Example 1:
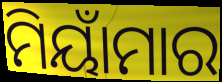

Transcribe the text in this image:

ମିୟାଁମାର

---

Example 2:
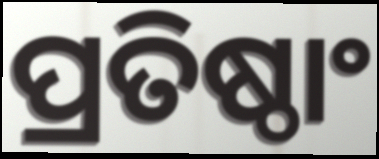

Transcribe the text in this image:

ପ୍ରତିଷ୍ଠାଂ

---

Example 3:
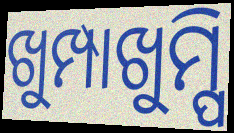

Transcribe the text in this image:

ଖୁମ୍ପାଖୁମ୍ପି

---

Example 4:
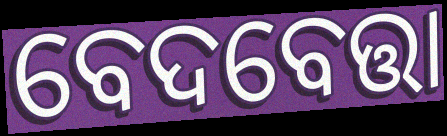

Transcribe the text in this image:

ବେଦବେତ୍ତା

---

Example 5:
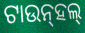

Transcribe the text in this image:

ଟାଉନ୍‌ହଲ୍